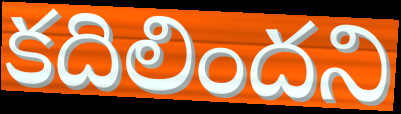
కదిలిందని